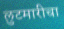
लुटमारीचा